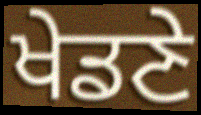
ਖੇਡਣੇ